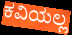
ಕವಿಯಲ್ಲ